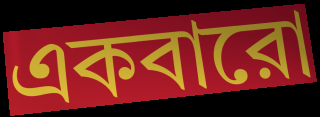
একবারো